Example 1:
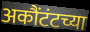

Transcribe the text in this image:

अकौंटंटच्या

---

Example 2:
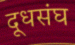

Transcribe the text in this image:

दूधसंघ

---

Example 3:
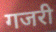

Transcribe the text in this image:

गजरी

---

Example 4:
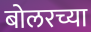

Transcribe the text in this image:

बोलरच्या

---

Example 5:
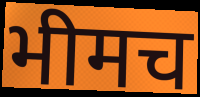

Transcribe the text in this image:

भीमच